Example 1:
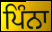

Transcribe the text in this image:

ਪਿੰਨਾ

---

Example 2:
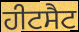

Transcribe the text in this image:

ਹੀਟਸੈਟ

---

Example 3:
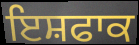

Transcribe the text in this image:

ਇਸ਼ਫਾਕ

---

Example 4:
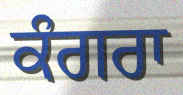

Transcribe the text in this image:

ਕੰਗਰਾ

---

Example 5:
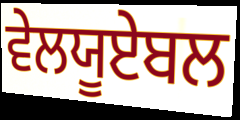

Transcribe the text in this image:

ਵੇਲਯੂਏਬਲ